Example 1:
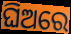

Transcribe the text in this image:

ଘିଅରେ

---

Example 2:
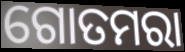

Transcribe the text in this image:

ଗୋତମରା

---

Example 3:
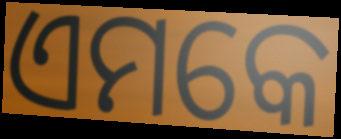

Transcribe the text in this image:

ଏମକେ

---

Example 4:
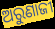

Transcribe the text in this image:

ଅରୁଣାଜୀ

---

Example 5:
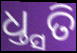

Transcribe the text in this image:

ଧ୍ତ୍ସତି